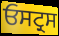
ਓਸਟ੍ਰਸ